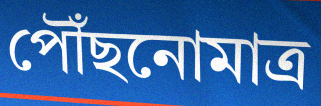
পৌঁছনোমাত্র